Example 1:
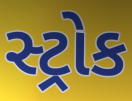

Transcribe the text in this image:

સ્ટ્રોક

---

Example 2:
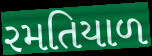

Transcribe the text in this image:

રમતિયાળ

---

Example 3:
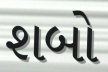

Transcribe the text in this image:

શબો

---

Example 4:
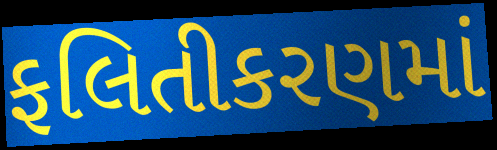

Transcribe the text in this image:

ફલિતીકરણમાં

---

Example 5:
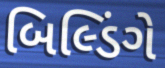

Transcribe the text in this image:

બિલ્ડિંગે